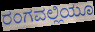
ರಂಗವಲ್ಲಿಯೂ